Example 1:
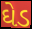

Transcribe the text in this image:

ઘેડ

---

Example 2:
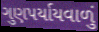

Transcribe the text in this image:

ગુણપર્યાયવાળું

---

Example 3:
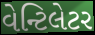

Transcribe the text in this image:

વેન્ટિલેટર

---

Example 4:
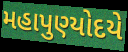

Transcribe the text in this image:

મહાપુણ્યોદયે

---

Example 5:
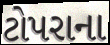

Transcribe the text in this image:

ટોપરાના